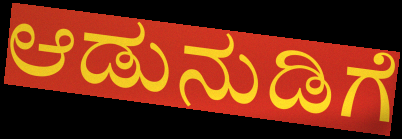
ಆಡುನುಡಿಗೆ